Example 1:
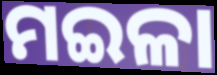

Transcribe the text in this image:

ମଇଳା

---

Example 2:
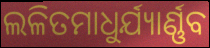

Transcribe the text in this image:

ଲଳିତମାଧୁର୍ଯ୍ୟାର୍ଣ୍ଣବ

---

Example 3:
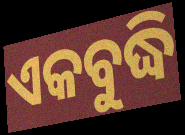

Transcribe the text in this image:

ଏକବୁଦ୍ଧି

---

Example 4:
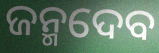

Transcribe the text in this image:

ଜନ୍ମଦେବ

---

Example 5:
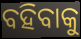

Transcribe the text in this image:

ବହିବାକୁ